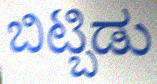
ಬಿಟ್ಬಿಡು